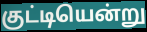
குட்டியென்று